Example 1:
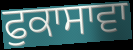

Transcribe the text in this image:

ਫੁਕਾਸਾਵਾ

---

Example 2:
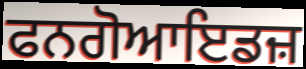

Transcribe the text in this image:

ਫਨਗੋਆਇਡਜ਼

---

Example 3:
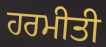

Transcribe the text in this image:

ਹਰਮੀਤੀ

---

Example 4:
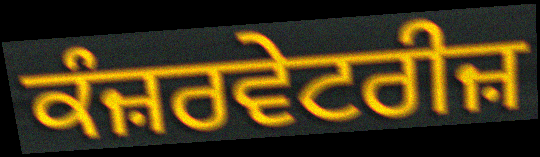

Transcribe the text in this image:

ਕੰਜ਼ਰਵੇਟਰੀਜ਼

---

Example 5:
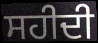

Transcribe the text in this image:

ਸਹੀਦੀ